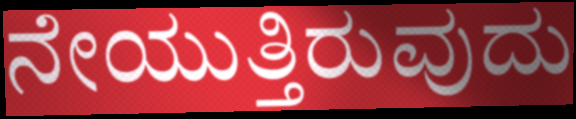
ನೇಯುತ್ತಿರುವುದು